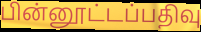
பின்னூட்டப்பதிவு